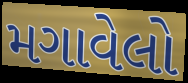
મગાવેલો